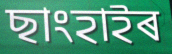
ছাংহাইৰ